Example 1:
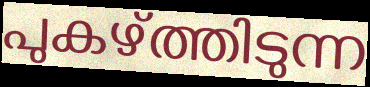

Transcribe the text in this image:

പുകഴ്ത്തിടുന്ന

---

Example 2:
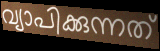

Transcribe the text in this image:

വ്യാപിക്കുന്നത്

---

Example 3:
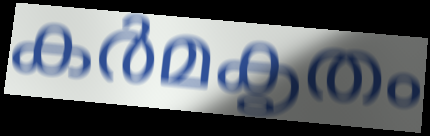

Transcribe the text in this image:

കർമകൃതം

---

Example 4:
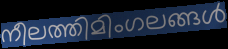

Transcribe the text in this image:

നീലത്തിമിംഗലങ്ങൾ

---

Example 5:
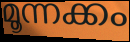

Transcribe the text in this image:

മൂന്നക്കം